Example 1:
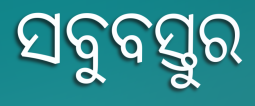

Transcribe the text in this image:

ସବୁବସ୍ତୁର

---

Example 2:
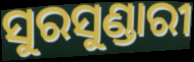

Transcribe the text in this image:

ସୁରସୁଣ୍ଡାରୀ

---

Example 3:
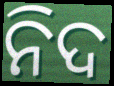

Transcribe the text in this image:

ନିଦ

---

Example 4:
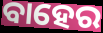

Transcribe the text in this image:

ବାହେର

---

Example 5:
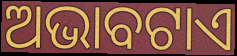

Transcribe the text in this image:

ଅଭାବଟାଏ